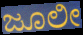
ಜೂಲೀ